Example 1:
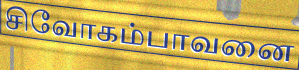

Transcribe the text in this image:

சிவோகம்பாவனை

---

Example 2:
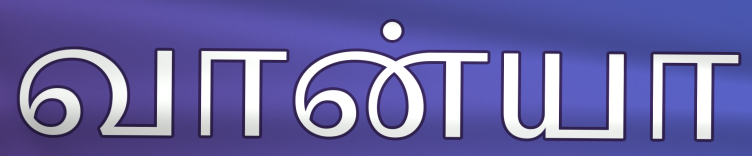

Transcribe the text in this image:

வான்யா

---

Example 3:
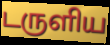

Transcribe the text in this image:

டருளிய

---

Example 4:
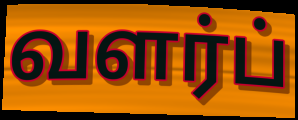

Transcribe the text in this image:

வளர்ப்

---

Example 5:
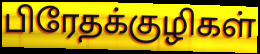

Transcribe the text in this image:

பிரேதக்குழிகள்